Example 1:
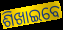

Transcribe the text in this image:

ଶିଖାଇବେ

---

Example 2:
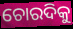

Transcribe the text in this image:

ଚୋରଦିକୁ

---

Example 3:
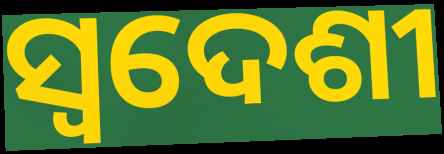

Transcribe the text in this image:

ସ୍ୱଦେଶୀ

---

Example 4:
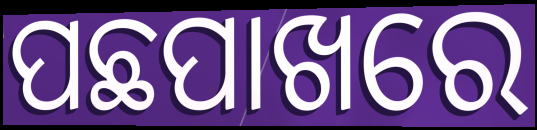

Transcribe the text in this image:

ପଛପାଖରେ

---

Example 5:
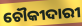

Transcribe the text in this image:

ଚୌକୀଦାରୀ